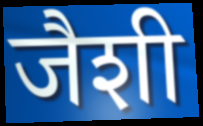
जैशी